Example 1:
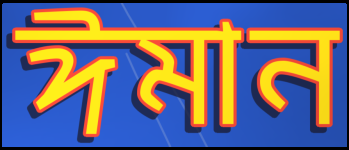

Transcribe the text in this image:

ঈমান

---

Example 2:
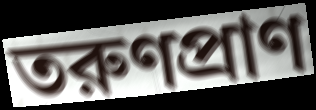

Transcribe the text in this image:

তরুণপ্রাণ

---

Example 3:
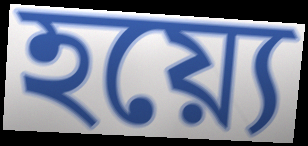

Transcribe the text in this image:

হয়্যে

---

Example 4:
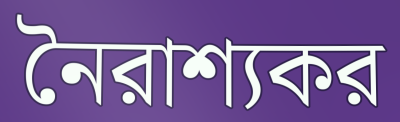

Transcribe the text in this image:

নৈরাশ্যকর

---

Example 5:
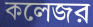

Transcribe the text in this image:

কলেজর